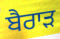
ਬੈਰਾੜ